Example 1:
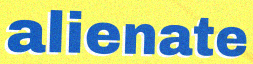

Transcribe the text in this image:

alienate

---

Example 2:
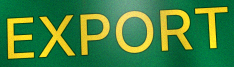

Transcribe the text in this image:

EXPORT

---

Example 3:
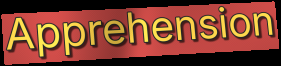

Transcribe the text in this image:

Apprehension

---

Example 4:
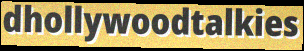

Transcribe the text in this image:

dhollywoodtalkies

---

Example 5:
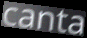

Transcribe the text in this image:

canta